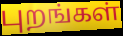
புறங்கள்